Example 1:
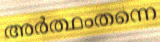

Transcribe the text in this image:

അർത്ഥംതന്നെ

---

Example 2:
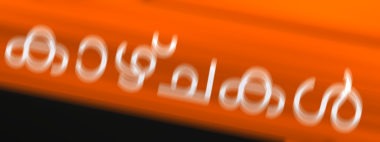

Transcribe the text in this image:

കാഴ്‌ചകൾ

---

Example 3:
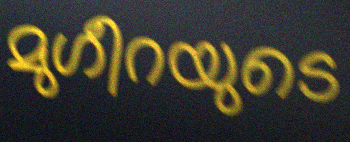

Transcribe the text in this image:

മുഗീറയുടെ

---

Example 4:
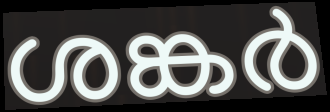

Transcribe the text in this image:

ശങ്കർ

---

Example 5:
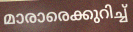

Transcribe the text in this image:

മാരാരെക്കുറിച്ച്